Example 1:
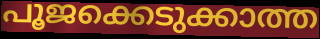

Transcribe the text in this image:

പൂജക്കെടുക്കാത്ത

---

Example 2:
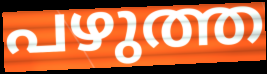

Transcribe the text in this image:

പഴുത്ത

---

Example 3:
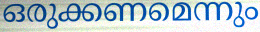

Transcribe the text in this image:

ഒരുക്കണമെന്നും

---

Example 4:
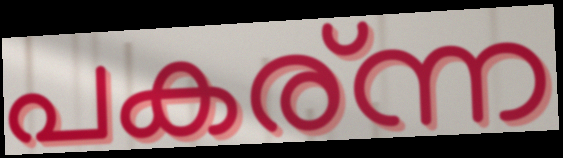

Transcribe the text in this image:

പകര്ന്ന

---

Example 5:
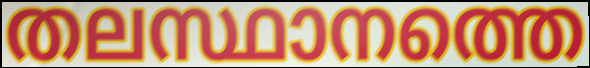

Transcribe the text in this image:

തലസ്ഥാനത്തെ